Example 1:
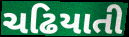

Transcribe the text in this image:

ચઢિયાતી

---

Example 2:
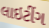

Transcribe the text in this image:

લાઇટીંગ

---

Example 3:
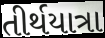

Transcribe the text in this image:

તીર્થયાત્રા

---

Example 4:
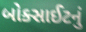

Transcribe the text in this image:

બોક્સાઈટનું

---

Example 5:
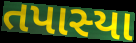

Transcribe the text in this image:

તપાસ્યા